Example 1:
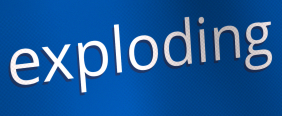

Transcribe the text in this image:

exploding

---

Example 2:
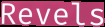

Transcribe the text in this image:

Revels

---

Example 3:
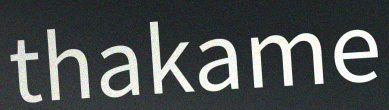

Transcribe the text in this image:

thakame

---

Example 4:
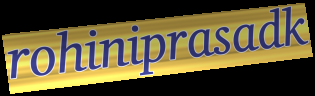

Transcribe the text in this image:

rohiniprasadk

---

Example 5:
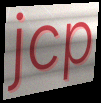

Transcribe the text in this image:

jcp